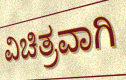
ವಿಚಿತ್ರವಾಗಿ